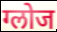
ग्लोज